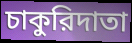
চাকুরিদাতা